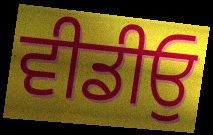
ਵੀਡੀਓੁ